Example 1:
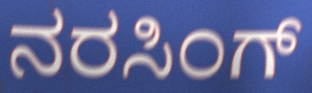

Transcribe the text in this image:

ನರಸಿಂಗ್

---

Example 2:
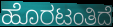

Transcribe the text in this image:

ಹೊರಟಂತಿದೆ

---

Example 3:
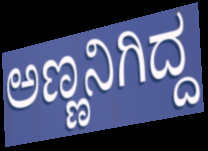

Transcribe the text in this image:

ಅಣ್ಣನಿಗಿದ್ದ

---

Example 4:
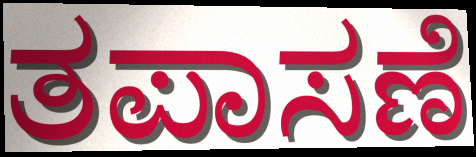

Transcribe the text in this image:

ತಪಾಸಣೆ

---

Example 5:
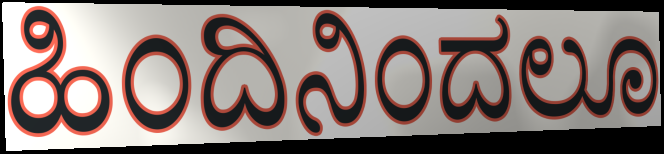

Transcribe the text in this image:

ಹಿಂದಿನಿಂದಲೂ